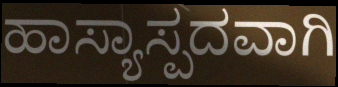
ಹಾಸ್ಯಾಸ್ಪದವಾಗಿ